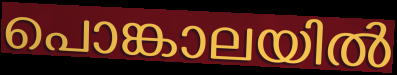
പൊങ്കാലയിൽ